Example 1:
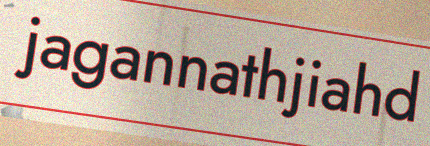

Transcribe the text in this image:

jagannathjiahd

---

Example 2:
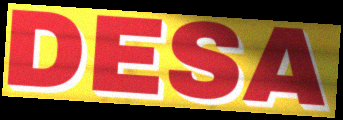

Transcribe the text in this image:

DESA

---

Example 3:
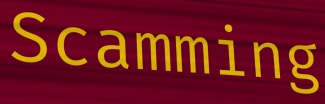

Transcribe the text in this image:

Scamming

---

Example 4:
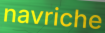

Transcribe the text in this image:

navriche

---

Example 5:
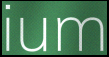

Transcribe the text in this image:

ium